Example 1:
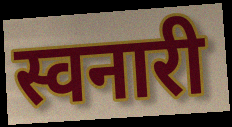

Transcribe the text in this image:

स्वनारी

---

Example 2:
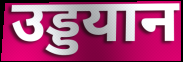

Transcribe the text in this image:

उड्डयान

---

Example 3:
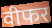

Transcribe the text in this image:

वीफर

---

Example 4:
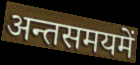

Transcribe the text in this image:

अन्तसमयमें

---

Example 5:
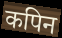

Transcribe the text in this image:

कपिन